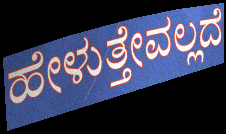
ಹೇಳುತ್ತೇವಲ್ಲದೆ